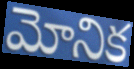
మోనిక